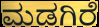
ಮಡಗಿರೆ